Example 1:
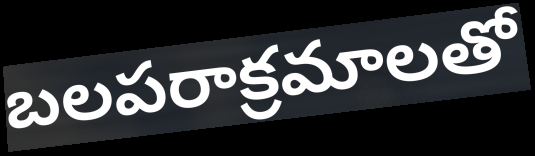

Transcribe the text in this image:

బలపరాక్రమాలతో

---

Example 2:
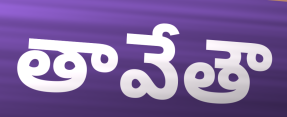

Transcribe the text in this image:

తావేతౌ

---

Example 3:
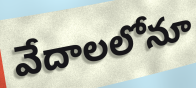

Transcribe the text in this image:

వేదాలలోనూ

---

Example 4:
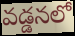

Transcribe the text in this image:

వడ్డనలో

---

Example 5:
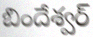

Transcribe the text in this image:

బిందేశ్వర్